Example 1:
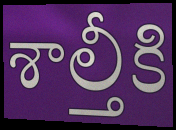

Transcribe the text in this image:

శాల్తీకి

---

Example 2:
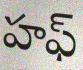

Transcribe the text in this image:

హఫ్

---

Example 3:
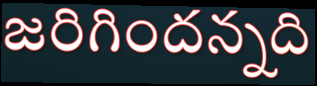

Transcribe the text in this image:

జరిగిందన్నది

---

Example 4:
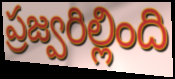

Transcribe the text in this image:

ప్రజ్వరిల్లింది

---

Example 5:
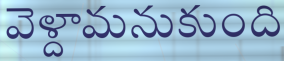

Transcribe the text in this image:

వెళ్దామనుకుంది